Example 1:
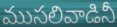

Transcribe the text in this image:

ముసలివాడినీ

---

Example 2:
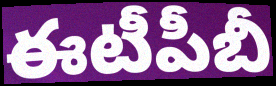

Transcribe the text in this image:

ఈటీపీబీ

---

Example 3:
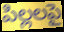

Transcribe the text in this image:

పిల్లలపై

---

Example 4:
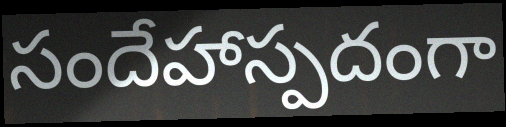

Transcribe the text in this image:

సందేహాస్పదంగా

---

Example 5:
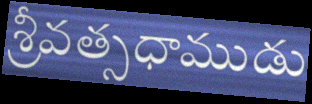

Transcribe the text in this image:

శ్రీవత్సధాముడు